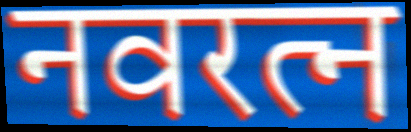
नवरत्न